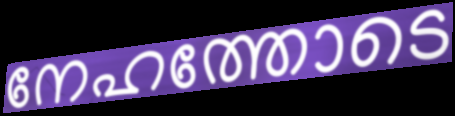
നേഹത്തോടെ